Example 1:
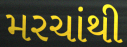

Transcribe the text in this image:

મરચાંથી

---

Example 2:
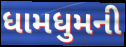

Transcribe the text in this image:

ધામધુમની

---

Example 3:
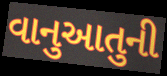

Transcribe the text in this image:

વાનુઆતુની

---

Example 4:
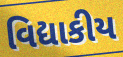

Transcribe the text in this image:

વિદ્યાકીય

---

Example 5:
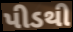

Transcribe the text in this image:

પીડથી